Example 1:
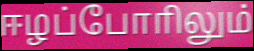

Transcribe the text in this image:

ஈழப்போரிலும்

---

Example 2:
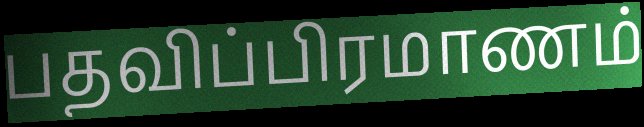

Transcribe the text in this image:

பதவிப்பிரமாணம்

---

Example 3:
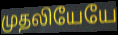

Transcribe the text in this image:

முதலியேயே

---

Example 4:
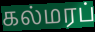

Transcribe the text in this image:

கல்மரப்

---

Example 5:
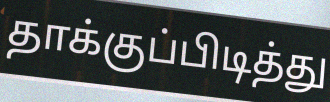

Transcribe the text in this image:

தாக்குப்பிடித்து